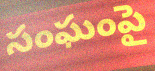
సంఘంపై